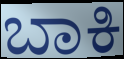
ಬಾಕಿ